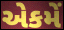
એકમેં